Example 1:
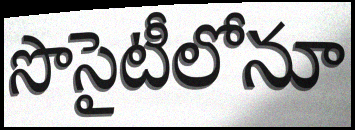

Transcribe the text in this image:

సొసైటీలోనూ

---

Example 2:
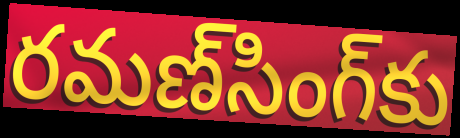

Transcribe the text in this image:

రమణ్‌సింగ్‌కు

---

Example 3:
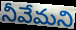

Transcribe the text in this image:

నీవేమని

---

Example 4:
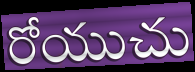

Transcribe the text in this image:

రోయుచు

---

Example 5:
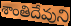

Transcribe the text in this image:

శాంతిదేవుని